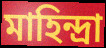
মাহিন্দ্রা